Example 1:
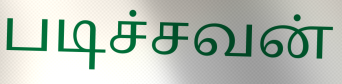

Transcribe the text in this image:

படிச்சவன்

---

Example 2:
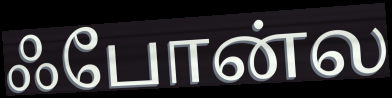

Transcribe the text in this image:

ஃபோன்ல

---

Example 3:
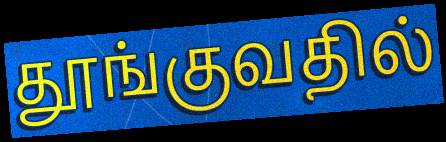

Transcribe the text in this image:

தூங்குவதில்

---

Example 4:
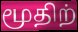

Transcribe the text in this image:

மூதிற்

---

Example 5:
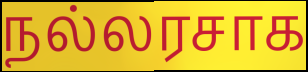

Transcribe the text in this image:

நல்லரசாக